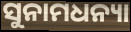
ସୁନାମଧନ୍ୟା